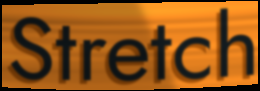
Stretch